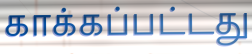
காக்கப்பட்டது